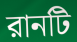
রানটি